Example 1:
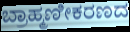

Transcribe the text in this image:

ಬ್ರಾಹ್ಮಣೀಕರಣದ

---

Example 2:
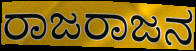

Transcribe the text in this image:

ರಾಜರಾಜನ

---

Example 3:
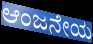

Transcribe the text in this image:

ಆಂಜನೇಯ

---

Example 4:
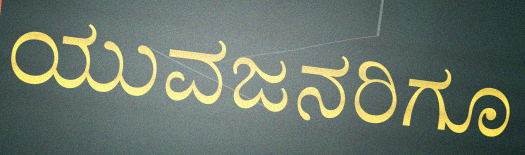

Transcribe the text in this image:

ಯುವಜನರಿಗೂ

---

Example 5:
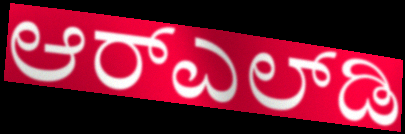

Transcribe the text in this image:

ಆರ್‌ಎಲ್‌ಡಿ